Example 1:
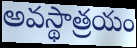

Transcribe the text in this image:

అవస్థాత్రయం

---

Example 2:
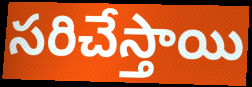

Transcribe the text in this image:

సరిచేస్తాయి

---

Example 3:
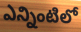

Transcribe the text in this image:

ఎన్నింటిలో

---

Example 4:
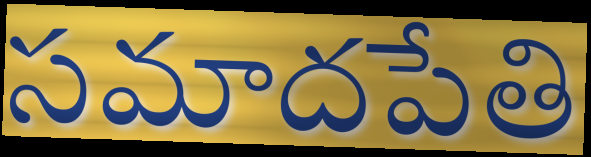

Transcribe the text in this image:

సమాదపేతి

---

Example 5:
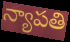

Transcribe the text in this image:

న్యాపతి